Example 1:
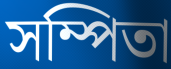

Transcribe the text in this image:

সম্পিতা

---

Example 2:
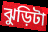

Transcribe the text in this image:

ঝুড়িটা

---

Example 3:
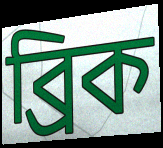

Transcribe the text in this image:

ব্রিক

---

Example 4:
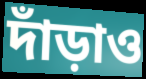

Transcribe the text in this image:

দাঁড়াও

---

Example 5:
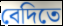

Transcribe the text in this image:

বেদিতে